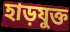
হাড়যুক্ত